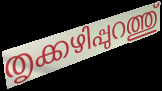
തൃക്കഴിപ്പുറത്തു്